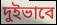
দুইভাবে